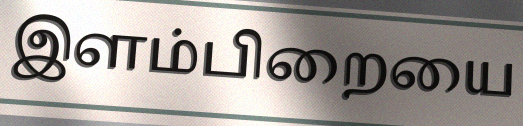
இளம்பிறையை